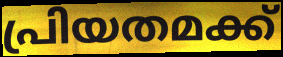
പ്രിയതമക്ക്